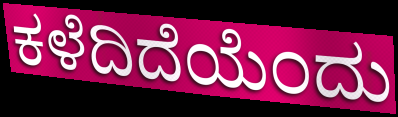
ಕಳೆದಿದೆಯೆಂದು